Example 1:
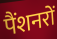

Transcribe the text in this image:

पैंशनरों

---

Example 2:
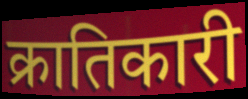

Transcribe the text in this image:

क्रातिकारी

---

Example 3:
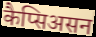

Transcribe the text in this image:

कैप्सिअसन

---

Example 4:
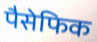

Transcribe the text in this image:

पैसेफिक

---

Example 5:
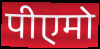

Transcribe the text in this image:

पीएमो